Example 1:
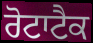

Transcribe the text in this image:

ਰੋਟਾਟੈਕ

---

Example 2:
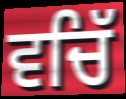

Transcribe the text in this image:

ਵਚਿੱ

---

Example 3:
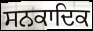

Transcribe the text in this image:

ਸਨਕਾਦਿਕ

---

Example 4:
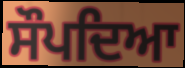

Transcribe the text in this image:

ਸੌਪਦਿਆ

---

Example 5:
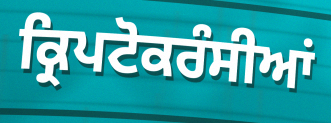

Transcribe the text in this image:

ਕ੍ਰਿਪਟੋਕਰੰਸੀਆਂ